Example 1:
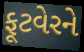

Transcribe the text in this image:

ફૂટવેરને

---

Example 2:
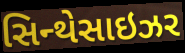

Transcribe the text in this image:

સિન્થેસાઇઝર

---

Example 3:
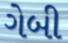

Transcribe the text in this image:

ગેબી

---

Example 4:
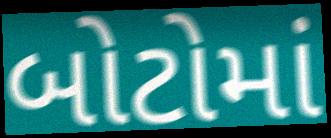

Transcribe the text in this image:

બોટોમાં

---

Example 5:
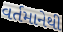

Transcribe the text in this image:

વર્તમાનેથી